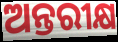
ଅନ୍ତରୀକ୍ଷ